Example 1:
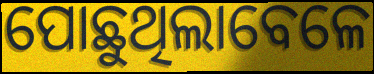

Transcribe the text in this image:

ପୋଛୁଥିଲାବେଳେ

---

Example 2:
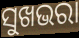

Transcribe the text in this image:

ସୁଖଭରା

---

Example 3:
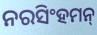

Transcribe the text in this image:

ନରସିଂହମନ୍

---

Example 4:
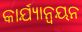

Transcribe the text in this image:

କାର୍ଯ୍ୟାନ୍ଵୟନ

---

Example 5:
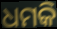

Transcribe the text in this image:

ଧମକି